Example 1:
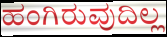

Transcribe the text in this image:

ಹಂಗಿರುವುದಿಲ್ಲ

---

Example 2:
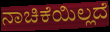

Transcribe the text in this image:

ನಾಚಿಕೆಯಿಲ್ಲದೆ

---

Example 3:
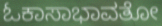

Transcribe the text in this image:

ಓಕಾಸಾಭಾವತೋ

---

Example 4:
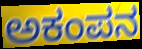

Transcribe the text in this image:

ಅಕಂಪನ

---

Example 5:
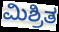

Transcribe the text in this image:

ಮಿಶ್ರಿತ